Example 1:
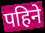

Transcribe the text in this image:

पहिने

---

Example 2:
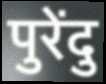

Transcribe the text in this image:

पुरेंदु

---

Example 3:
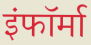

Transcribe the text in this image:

इंफॉर्मा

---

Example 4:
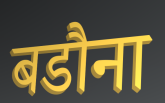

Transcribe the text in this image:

बडौना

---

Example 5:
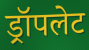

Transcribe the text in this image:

ड्रॉपलेट